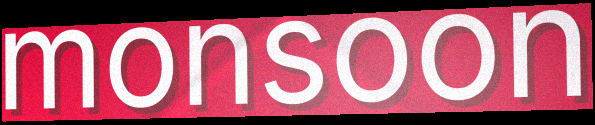
monsoon